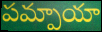
పమ్పాయా